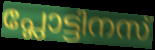
പ്ലോട്ടിനസ്